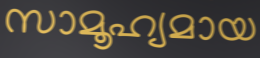
സാമൂഹ്യമായ